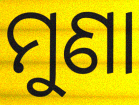
ମୁଣା